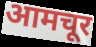
आमचूर